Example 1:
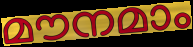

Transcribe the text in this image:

മൗനമാം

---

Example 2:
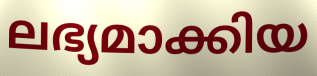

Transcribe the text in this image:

ലഭ്യമാക്കിയ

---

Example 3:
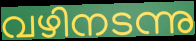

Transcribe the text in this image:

വഴിനടന്നു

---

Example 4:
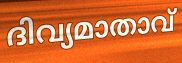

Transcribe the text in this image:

ദിവ്യമാതാവ്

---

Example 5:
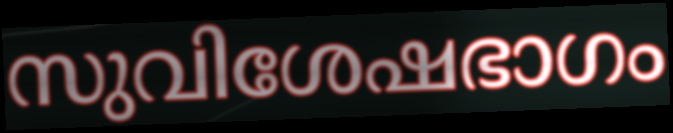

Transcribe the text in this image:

സുവിശേഷഭാഗം